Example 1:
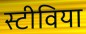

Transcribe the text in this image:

स्टीविया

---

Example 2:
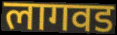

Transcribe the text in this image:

लागवड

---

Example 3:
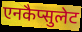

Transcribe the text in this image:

एनकैप्सुलेट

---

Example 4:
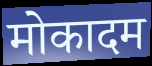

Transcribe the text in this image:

मोकादम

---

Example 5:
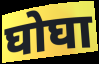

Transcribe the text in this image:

घोघा